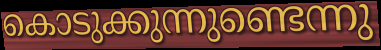
കൊടുക്കുന്നുണ്ടെന്നു